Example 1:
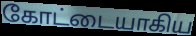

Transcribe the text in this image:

கோட்டையாகிய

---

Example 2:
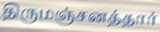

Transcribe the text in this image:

திருமஞ்சனத்தார்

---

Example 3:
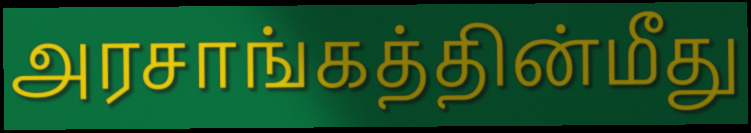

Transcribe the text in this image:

அரசாங்கத்தின்மீது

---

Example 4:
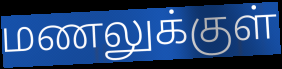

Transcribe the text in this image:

மணலுக்குள்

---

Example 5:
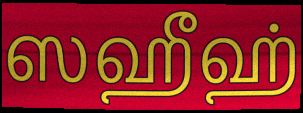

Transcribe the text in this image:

ஸஹீஹ்